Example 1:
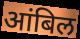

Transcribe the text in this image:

आंबिल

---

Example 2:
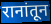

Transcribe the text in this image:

रानांतून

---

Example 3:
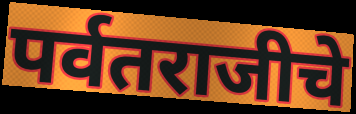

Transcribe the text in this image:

पर्वतराजीचे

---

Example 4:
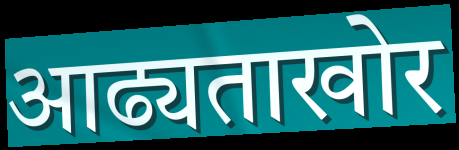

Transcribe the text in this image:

आढ्यताखोर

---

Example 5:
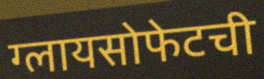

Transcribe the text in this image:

ग्लायसोफेटची